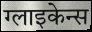
ग्लाइकेन्स